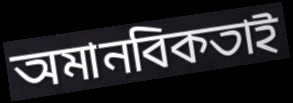
অমানবিকতাই